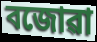
বজোৱা